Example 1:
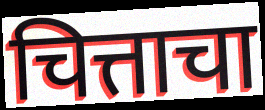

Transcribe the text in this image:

चित्ताचा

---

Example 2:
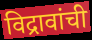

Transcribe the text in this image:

विद्रावांची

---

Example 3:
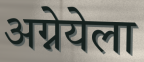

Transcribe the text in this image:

अग्नेयेला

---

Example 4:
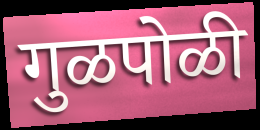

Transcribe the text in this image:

गुळपोळी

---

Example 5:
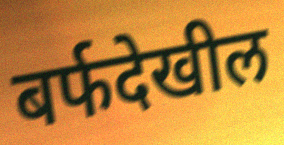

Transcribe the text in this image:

बर्फदेखील